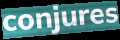
conjures